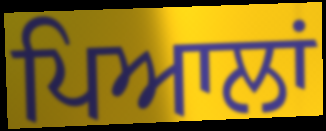
ਪਿਆਲਾਂ